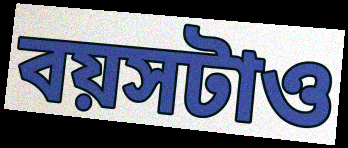
বয়সটাও